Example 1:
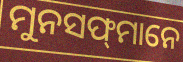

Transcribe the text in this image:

ମୁନସଫ୍‍ମାନେ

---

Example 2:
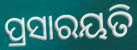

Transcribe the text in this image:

ପ୍ରସାରୟତି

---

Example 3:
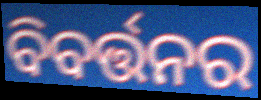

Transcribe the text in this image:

ବିବର୍ତ୍ତନର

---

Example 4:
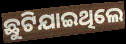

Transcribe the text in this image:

ଛୁଟିଯାଇଥିଲେ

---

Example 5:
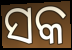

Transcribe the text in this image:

ସକ